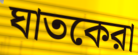
ঘাতকেরা